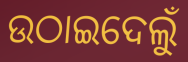
ଉଠାଇଦେଲୁଁ